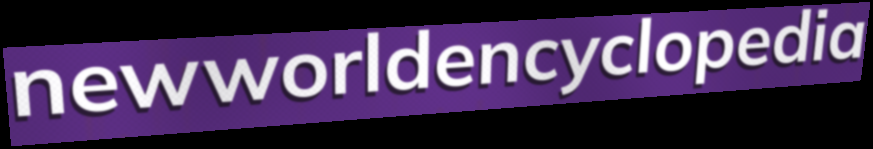
newworldencyclopedia